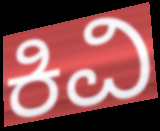
ಕಿವಿ